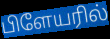
பிளேயரில்